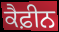
ਕੈਫ਼ੀਨ